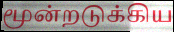
மூன்றடுக்கிய